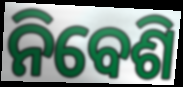
ନିବେଶି